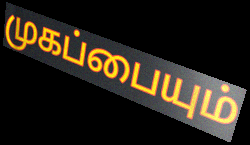
முகப்பையும்